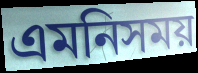
এমনিসময়